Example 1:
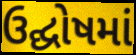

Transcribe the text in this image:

ઉદ્ઘોષમાં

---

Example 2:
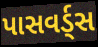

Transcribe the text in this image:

પાસવર્ડ્સ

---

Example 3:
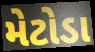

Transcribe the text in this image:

મેટોડા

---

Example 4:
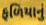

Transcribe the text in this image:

ફળિયાનું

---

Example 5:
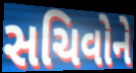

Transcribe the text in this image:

સચિવોને